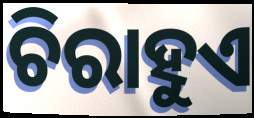
ଚିରାହୁଏ